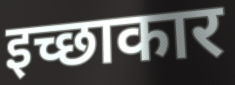
इच्छाकार